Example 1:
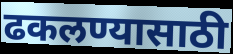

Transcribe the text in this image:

ढकलण्यासाठी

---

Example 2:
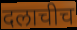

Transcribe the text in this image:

दलाचीच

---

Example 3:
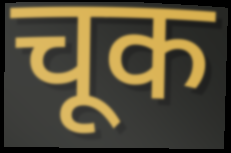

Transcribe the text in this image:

चूक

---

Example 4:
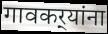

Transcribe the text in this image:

गावकर्यांना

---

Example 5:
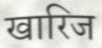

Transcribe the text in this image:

खारिज